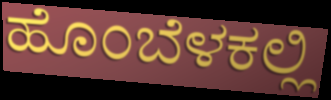
ಹೊಂಬೆಳಕಲ್ಲಿ